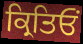
ਕ੍ਰਿਤਿਓਂ